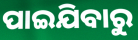
ପାଇଯିବାରୁ